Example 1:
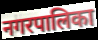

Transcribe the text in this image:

नगरपालिका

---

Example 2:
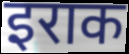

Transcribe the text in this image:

इराक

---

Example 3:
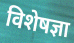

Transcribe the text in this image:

विशेषज्ञा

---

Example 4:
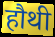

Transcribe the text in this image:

हौथी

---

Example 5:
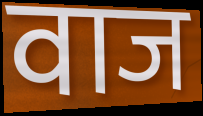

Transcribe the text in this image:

वाज